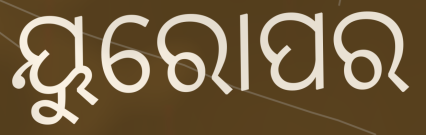
ୟୁରୋପର